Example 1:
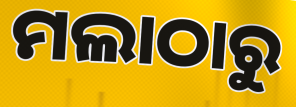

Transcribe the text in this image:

ମଲାଠାରୁ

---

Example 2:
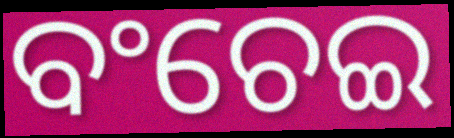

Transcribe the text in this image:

ବଂଚେଇ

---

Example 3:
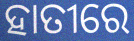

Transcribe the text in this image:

ହାତୀରେ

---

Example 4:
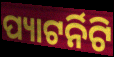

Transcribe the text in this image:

ପ୍ୟାଟର୍ନିଟି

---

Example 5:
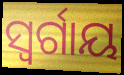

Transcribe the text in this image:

ସ୍ବର୍ଗାୟ